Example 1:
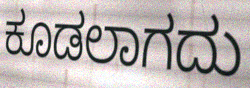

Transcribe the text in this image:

ಕೂಡಲಾಗದು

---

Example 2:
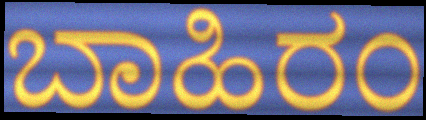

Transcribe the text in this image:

ಬಾಹಿರಂ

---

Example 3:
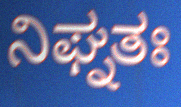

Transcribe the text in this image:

ನಿಘ್ನತಃ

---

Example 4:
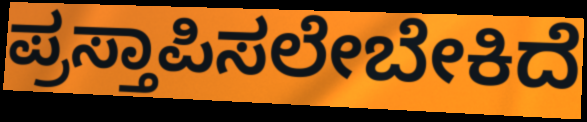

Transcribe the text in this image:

ಪ್ರಸ್ತಾಪಿಸಲೇಬೇಕಿದೆ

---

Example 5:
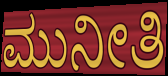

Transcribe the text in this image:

ಮುನೀತಿ